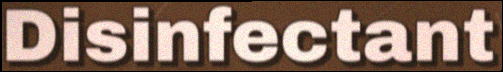
Disinfectant